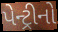
પેન્ટ્રીનો